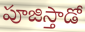
పూజిస్తాడో